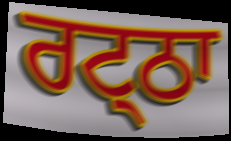
ਰਟ੍ਠਾ